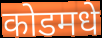
कोडमधे